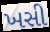
ખસી